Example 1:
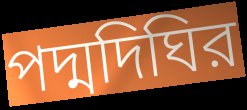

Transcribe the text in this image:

পদ্মদিঘির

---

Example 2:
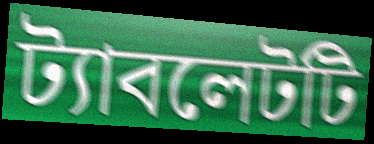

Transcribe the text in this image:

ট্যাবলেটটি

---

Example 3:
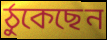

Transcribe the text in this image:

ঠুকেছেন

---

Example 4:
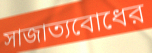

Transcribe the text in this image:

সাজাত্যবোধের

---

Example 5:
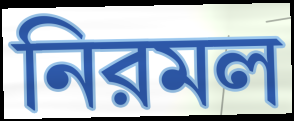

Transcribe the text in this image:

নিরমল